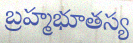
బ్రహ్మభూతస్య